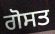
ਗੋਸਤ